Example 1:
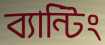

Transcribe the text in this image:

ব্যান্টিং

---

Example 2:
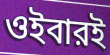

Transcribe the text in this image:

ওইবারই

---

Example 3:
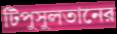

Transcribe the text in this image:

টিপুসুলতানের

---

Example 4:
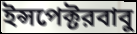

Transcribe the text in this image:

ইন্সপেক্টরবাবু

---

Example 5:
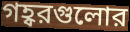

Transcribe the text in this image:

গহ্বরগুলোর